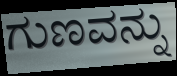
ಗುಣವನ್ನು